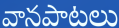
వానపాటలు